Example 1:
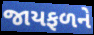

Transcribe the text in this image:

જાયફળને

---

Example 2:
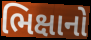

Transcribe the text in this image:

ભિક્ષાનો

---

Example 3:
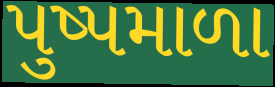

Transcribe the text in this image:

પુષ્પમાળા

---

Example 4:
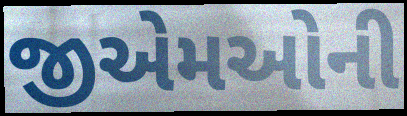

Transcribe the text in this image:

જીએમઓની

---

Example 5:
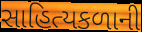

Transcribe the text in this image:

સાહિત્યકળાની